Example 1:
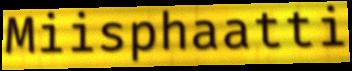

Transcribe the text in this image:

Miisphaatti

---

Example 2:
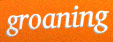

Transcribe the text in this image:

groaning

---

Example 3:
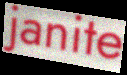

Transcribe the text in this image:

janite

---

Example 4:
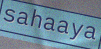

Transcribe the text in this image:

sahaaya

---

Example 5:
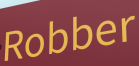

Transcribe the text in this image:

Robber